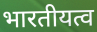
भारतीयत्व